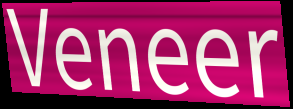
Veneer